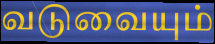
வடுவையும்